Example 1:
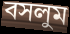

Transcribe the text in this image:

বসলুম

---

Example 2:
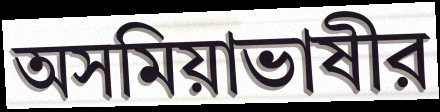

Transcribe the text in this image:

অসমিয়াভাষীর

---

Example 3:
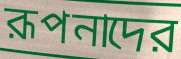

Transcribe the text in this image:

রূপনাদের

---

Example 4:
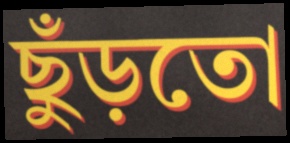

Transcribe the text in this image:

ছুঁড়তো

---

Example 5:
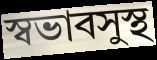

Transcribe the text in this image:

স্বভাবসুস্থ